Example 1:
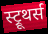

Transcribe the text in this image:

स्ट्रूथर्स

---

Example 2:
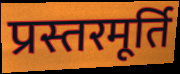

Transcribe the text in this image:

प्रस्तरमूर्ति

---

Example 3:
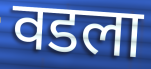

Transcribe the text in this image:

वडला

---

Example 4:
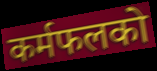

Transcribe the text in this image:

कर्मफलको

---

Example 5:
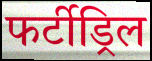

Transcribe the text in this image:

फर्टीड्रिल